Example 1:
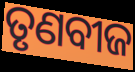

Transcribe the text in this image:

ତୃଣବୀଜ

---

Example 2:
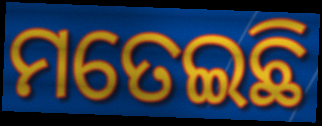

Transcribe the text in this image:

ମତେଇଛି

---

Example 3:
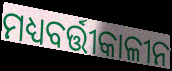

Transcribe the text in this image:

ମଧ୍ୟବର୍ତ୍ତୀକାଳୀନ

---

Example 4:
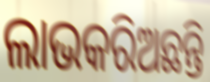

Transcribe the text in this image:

ଲାଭକରିଅଛନ୍ତି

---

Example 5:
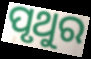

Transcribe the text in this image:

ପୃଥୁର